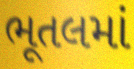
ભૂતલમાં